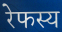
रेफस्य